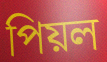
পিয়ল